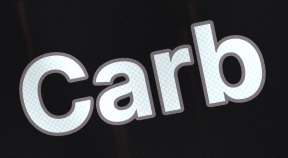
Carb